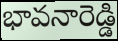
భావనారెడ్డి